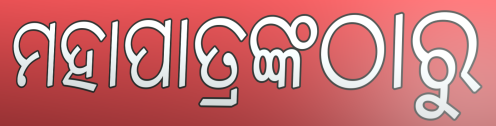
ମହାପାତ୍ରଙ୍କଠାରୁ